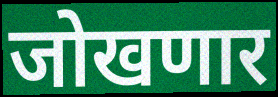
जोखणार